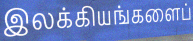
இலக்கியங்களைப்